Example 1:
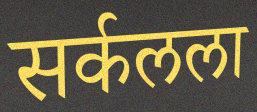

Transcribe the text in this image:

सर्कलला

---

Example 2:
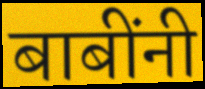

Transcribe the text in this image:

बाबींनी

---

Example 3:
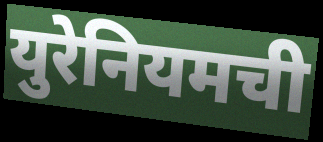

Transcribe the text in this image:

युरेनियमची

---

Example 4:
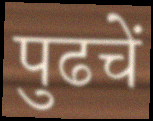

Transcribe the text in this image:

पुढचें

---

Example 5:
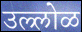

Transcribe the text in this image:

उल्लोळ